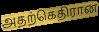
அதற்கெதிரான